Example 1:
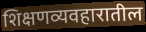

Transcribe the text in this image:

शिक्षणव्यवहारातील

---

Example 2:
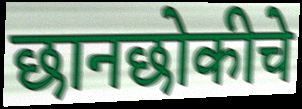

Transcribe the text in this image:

छानछोकीचे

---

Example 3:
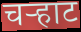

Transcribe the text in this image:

चऱ्हाट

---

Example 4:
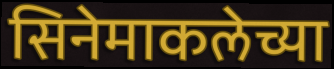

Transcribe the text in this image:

सिनेमाकलेच्या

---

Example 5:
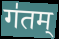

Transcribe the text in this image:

ग॑तम्